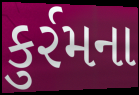
કુર્રમના